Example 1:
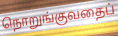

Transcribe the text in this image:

நொறுங்குவதைப்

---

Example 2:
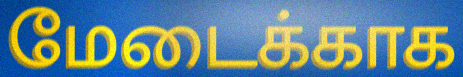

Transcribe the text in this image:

மேடைக்காக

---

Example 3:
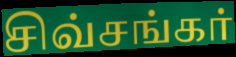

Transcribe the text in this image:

சிவ்சங்கர்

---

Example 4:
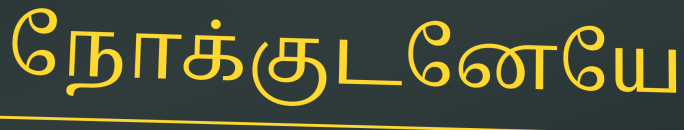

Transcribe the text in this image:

நோக்குடனேயே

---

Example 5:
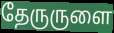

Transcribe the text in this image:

தேருருளை